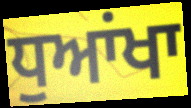
ਧੁਆਂਖਾ